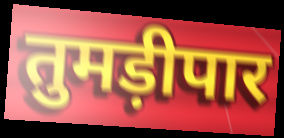
तुमड़ीपार